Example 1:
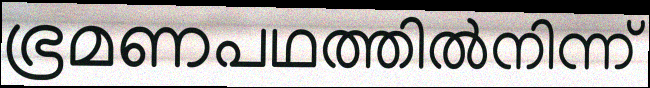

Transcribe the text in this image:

ഭ്രമണപഥത്തിൽനിന്ന്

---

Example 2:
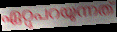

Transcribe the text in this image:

ഏറ്റുപറയുന്നത്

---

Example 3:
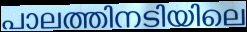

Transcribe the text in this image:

പാലത്തിനടിയിലെ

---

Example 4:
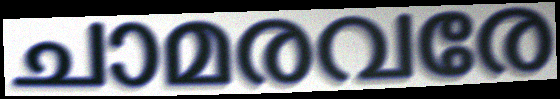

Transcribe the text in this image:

ചാമരവരേ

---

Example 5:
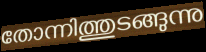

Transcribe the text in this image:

തോന്നിത്തുടങ്ങുന്നു